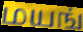
மயங்